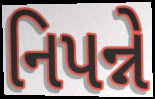
નિપન્ને